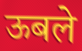
ऊबले